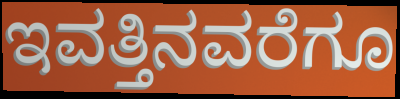
ಇವತ್ತಿನವರೆಗೂ